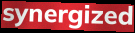
synergized